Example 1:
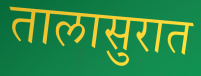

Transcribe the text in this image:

तालासुरात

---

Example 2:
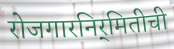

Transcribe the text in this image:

रोजगारनिर्मितीची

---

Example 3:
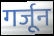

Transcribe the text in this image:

गर्जून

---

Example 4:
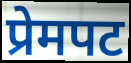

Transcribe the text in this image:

प्रेमपट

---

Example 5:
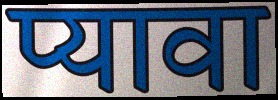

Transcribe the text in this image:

प्यावा